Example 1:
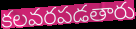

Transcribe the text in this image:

కలవరపడతారు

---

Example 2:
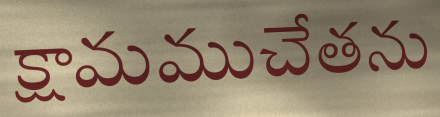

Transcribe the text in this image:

క్షామముచేతను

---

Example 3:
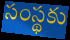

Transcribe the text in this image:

సంస్థకు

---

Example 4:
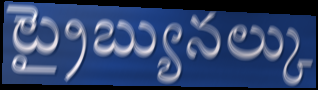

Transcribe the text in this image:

ట్రైబ్యునల్కు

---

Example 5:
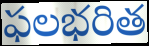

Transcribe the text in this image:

ఫలభరిత